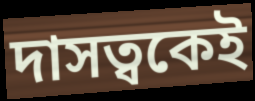
দাসত্বকেই